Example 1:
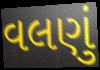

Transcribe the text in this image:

વલણું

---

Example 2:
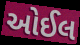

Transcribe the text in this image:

ઓઈલ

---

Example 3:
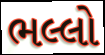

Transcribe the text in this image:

ભલ્લો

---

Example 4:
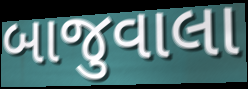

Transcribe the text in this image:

બાજુવાલા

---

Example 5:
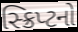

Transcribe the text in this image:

સ્ક્રિપ્ટનો